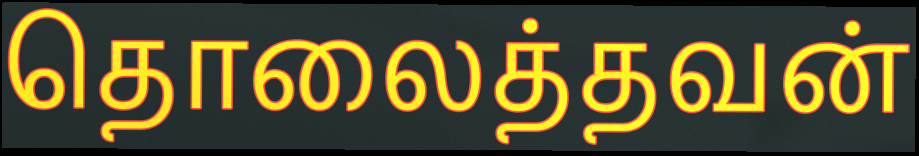
தொலைத்தவன்